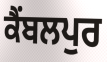
ਕੈਂਬਲਪੁਰ